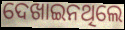
ଦେଖାଇନଥିଲେ